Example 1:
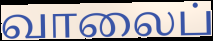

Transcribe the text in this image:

வாலைப்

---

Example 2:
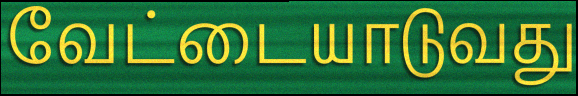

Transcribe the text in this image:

வேட்டையாடுவது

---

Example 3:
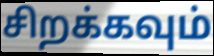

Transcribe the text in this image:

சிறக்கவும்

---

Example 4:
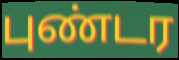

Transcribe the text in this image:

புண்டர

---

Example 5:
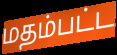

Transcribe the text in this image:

மதம்பட்ட